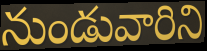
నుండువారిని